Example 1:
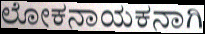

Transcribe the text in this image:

ಲೋಕನಾಯಕನಾಗಿ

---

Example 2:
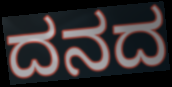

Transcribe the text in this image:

ದನದ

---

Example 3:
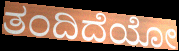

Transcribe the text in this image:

ತಂದಿದೆಯೋ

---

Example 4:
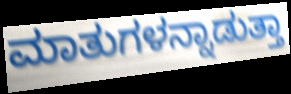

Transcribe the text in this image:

ಮಾತುಗಳನ್ನಾಡುತ್ತಾ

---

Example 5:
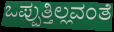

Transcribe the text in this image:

ಒಪ್ಪುತ್ತಿಲ್ಲವಂತೆ